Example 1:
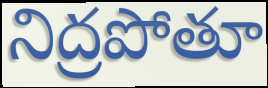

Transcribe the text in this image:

నిద్రపోతూ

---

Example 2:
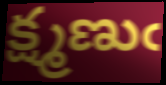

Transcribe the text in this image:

క్ష్మణుఁ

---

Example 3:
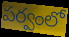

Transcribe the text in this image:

పర్వంలో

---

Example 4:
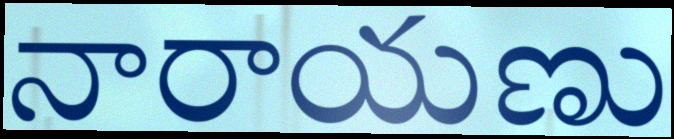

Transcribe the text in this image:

నారాయణు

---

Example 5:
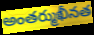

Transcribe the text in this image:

అంతర్ముఖీనత